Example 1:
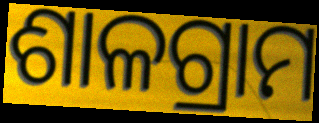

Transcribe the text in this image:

ଶାଳଗ୍ରାମ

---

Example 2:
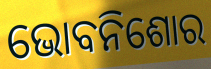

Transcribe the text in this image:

ଭୋବନିଶୋର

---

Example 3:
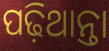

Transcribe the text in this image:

ପଢ଼ିଥାନ୍ତା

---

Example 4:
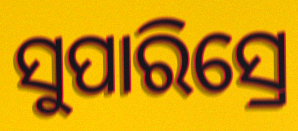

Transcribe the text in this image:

ସୁପାରିସ୍ରେ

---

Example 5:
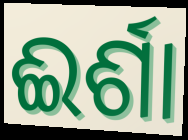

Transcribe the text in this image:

ଈର୍ଶା